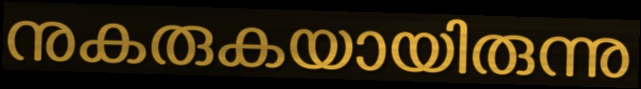
നുകരുകയായിരുന്നു